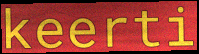
keerti